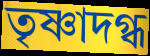
তৃষ্ণাদগ্ধ